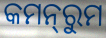
କମନ୍‌ରୁମ